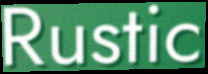
Rustic